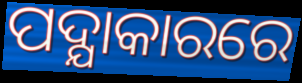
ପଦ୍ଯାକାରରେ